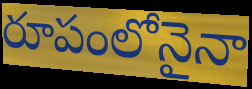
రూపంలోనైనా